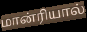
மான்ரியால்